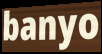
banyo